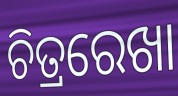
ଚିତ୍ରରେଖା